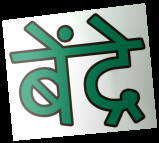
बेंद्रे